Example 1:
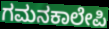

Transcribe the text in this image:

ಗಮನಕಾಲೇಪಿ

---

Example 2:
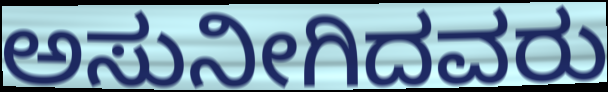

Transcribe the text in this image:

ಅಸುನೀಗಿದವರು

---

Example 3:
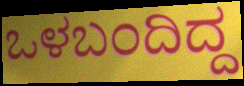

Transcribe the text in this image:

ಒಳಬಂದಿದ್ದ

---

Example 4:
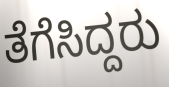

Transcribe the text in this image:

ತೆಗೆಸಿದ್ದರು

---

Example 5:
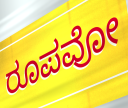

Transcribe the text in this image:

ರೂಪವೋ